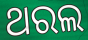
ଥରଲ